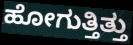
ಹೋಗುತ್ತಿತ್ತು